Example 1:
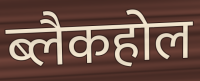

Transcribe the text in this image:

ब्लैकहोल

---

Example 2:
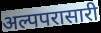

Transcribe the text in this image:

अल्पपरासारी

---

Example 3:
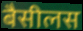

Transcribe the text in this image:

बैसीलस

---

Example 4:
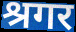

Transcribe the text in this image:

श्रगर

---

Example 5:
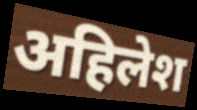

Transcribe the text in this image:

अहिलेश